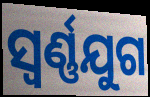
ସ୍ଵର୍ଣ୍ଣଯୁଗ